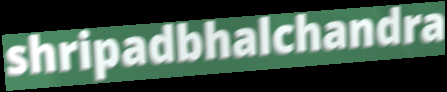
shripadbhalchandra